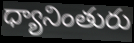
ధ్యానింతురు